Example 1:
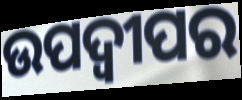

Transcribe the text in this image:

ଉପଦ୍ୱୀପର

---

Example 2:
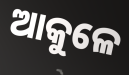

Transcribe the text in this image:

ଆକୁଳେ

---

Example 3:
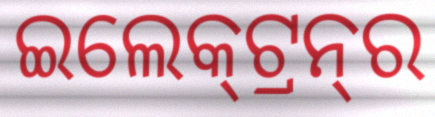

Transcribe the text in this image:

ଇଲେକ୍‍ଟ୍ରନ୍‍ର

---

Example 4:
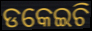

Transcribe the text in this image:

ଡକେଇଚି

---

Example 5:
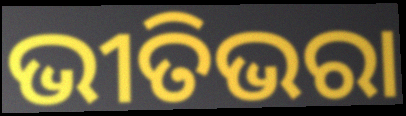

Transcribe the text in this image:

ଭୀତିଭରା